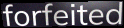
forfeited